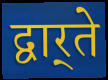
द्वार्ते